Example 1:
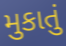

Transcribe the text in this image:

મુકાતું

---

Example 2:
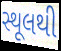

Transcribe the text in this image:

સ્થૂલથી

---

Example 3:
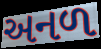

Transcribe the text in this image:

અનળ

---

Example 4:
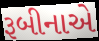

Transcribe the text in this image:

રૂબીનાએ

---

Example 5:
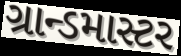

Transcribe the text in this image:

ગ્રાન્ડમાસ્ટર